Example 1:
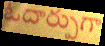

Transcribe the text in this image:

ఓదార్పుగా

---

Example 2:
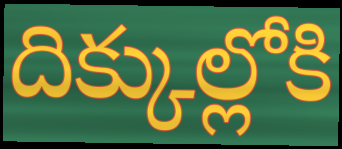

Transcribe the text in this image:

దిక్కుల్లోకి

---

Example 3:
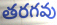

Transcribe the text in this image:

తరగవు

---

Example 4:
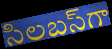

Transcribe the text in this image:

సిలబస్‌గా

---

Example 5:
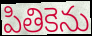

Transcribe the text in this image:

పితికెను